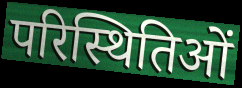
परिस्थितिओं